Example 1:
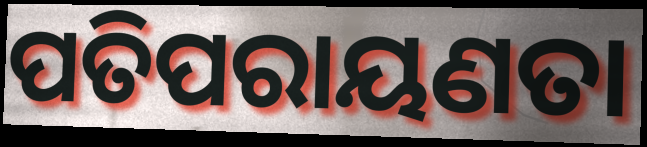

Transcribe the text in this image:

ପତିପରାୟଣତା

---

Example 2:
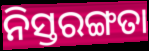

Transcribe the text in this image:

ନିସ୍ତରଙ୍ଗତା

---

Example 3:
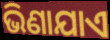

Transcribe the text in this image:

ଭିଣାଯାଏ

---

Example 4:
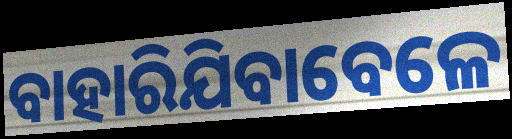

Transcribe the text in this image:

ବାହାରିଯିବାବେଳେ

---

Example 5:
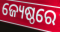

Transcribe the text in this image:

ଜ୍ୟେଷ୍ଠରେ